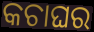
କଚାଘର